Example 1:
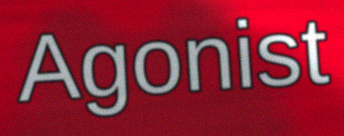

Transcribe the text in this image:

Agonist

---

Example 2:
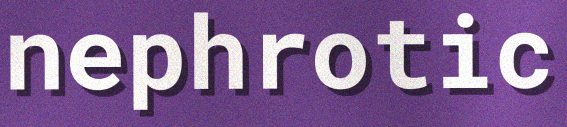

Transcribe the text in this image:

nephrotic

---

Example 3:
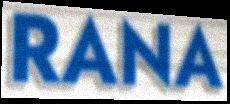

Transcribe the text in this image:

RANA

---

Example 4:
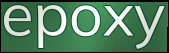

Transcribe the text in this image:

epoxy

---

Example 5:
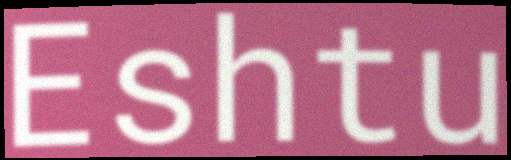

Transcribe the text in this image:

Eshtu